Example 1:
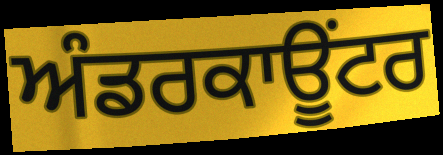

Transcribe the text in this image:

ਅੰਡਰਕਾਊਂਟਰ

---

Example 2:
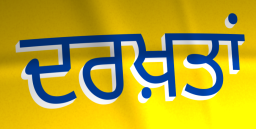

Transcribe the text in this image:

ਦਰਖ਼ਤਾਂ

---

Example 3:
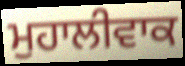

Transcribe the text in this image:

ਮੁਹਾਲੀਵਾਕ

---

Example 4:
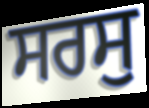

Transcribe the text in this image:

ਸਰਸੁ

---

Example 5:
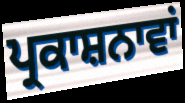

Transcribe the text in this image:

ਪ੍ਰਕਾਸ਼ਨਾਵਾਂ